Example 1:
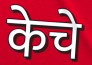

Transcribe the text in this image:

केचे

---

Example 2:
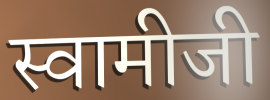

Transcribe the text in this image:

स्वामीजी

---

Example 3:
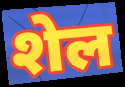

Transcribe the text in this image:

शेल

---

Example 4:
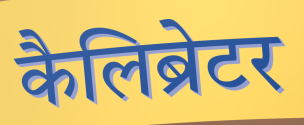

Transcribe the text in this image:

कैलिब्रेटर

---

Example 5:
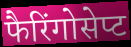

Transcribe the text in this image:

फैरिंगोसेप्ट